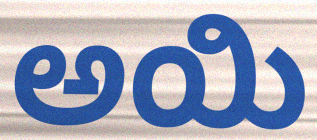
ಅಯಿ